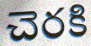
చెరకి